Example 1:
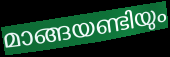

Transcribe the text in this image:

മാങ്ങയണ്ടിയും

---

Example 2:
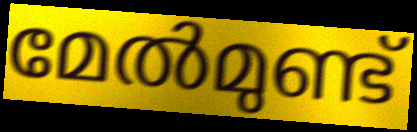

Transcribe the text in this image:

മേൽമുണ്ട്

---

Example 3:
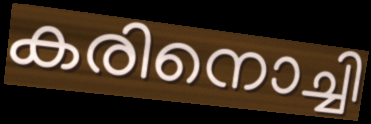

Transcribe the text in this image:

കരിനൊച്ചി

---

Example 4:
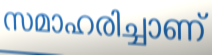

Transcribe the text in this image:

സമാഹരിച്ചാണ്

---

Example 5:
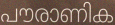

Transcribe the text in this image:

പൗരാണിക